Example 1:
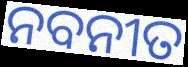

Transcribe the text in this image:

ନବନୀତ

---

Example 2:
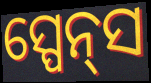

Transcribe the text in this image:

ସ୍ପେନ୍‌ସ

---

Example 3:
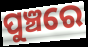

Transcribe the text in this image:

ପୁଞ୍ଚରେ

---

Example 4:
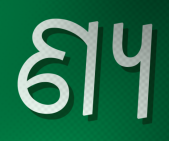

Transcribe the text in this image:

ଣ୍ଯ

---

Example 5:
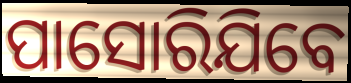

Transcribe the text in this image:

ପାସୋରିଯିବେ